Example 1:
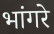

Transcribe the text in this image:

भांगरे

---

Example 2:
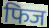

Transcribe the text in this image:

फिज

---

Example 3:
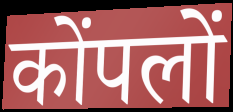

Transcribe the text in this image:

कोंपलों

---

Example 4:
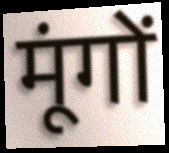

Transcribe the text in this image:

मूंगों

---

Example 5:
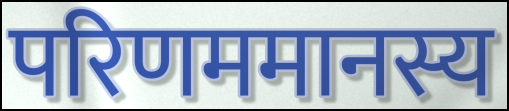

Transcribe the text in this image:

परिणममानस्य